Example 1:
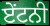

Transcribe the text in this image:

ਏਂਟਨੀ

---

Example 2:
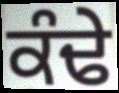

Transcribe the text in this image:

ਕੰਢੇ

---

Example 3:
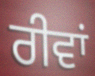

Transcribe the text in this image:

ਰੀਵਾਂ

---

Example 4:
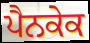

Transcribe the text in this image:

ਪੈਨਕੇਕ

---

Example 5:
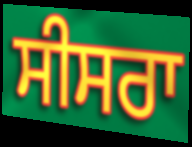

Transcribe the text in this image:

ਸੀਸਰਾ